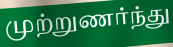
முற்றுணர்ந்து